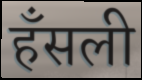
हँसली